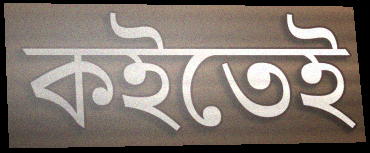
কইতেই